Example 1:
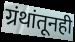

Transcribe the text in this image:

ग्रंथांतूनही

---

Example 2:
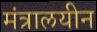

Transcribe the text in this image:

मंत्रालयीन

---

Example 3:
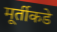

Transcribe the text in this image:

मूर्तीकडे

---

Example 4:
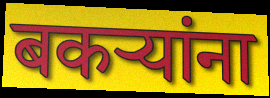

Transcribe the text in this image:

बकर्‍यांना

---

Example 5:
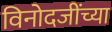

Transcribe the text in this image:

विनोदजींच्या